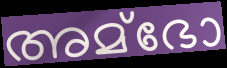
അമ്ഭോ